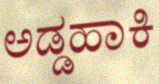
ಅಡ್ಡಹಾಕಿ